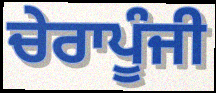
ਚੇਰਾਪੂੰਜੀ